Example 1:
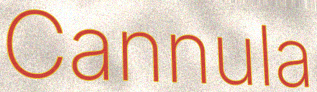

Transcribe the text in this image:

Cannula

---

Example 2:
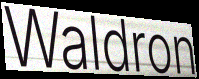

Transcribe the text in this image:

Waldron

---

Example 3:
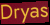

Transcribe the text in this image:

Dryas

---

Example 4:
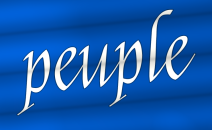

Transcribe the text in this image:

peuple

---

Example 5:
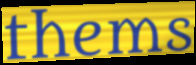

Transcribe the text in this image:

thems